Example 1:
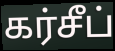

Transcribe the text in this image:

கர்சீப்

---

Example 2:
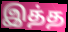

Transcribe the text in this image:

இத்த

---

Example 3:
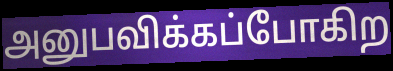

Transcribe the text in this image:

அனுபவிக்கப்போகிற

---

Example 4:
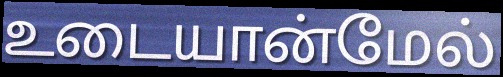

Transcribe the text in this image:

உடையான்மேல்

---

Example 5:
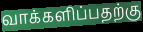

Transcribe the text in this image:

வாக்களிப்பதற்கு